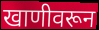
खाणीवरून